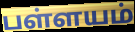
பள்ளயம்